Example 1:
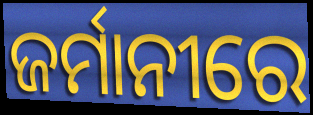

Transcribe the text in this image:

ଜର୍ମାନୀରେ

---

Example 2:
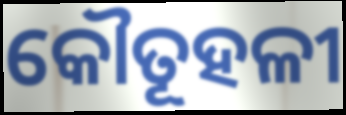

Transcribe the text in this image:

କୌତୂହଳୀ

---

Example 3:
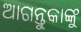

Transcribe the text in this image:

ଆଗନ୍ତୁକାଙ୍କୁ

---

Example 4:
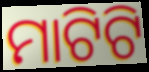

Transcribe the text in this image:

ମାଟିଟି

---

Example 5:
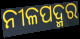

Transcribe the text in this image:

ନୀଳପଦ୍ମର